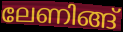
ലേണിങ്ങ്